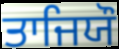
ਤਾਜਿਯੌ